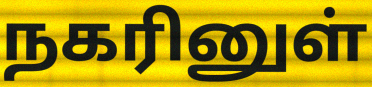
நகரினுள்